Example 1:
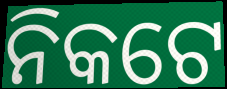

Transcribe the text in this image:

ନିକଟେ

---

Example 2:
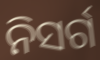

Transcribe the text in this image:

ନିସର୍ଗ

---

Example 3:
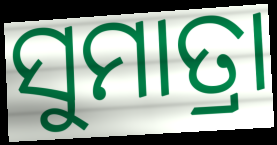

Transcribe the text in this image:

ସୁମାତ୍ରା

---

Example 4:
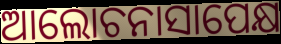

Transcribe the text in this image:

ଆଲୋଚନାସାପେକ୍ଷ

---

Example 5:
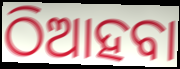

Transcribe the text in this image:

ଠିଆହବା